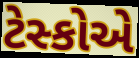
ટેસ્કોએ